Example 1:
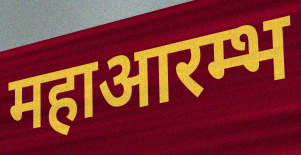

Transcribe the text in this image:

महाआरम्भ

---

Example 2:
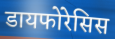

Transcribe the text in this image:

डायफोरेसिस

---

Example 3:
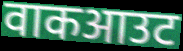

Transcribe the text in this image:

वाकआउट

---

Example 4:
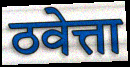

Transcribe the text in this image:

ठवेत्ता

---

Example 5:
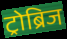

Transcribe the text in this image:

ट्रोब्रिज